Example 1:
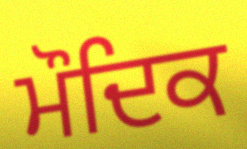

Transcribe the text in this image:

ਮੌਦਿਕ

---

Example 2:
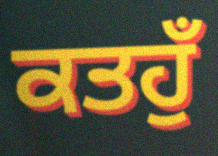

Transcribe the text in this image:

ਕਤਹੁਁ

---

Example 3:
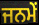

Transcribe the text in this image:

ਜਨਮੇਂ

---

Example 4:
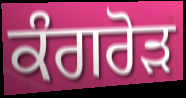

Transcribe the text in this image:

ਕੰਗਰੋੜ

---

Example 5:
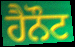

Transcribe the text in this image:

ਹੈਨੌਟ